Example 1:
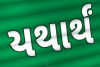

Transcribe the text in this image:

યથાર્થં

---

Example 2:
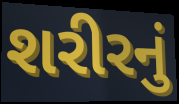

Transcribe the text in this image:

શરીરનું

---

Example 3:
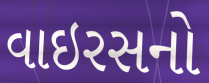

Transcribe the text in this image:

વાઇરસનો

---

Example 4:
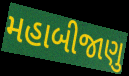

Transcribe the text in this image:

મહાબીજાણુ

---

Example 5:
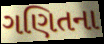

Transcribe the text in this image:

ગણિતના